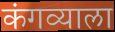
कंगव्याला